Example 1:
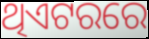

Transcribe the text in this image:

ଥିଏଟରରେ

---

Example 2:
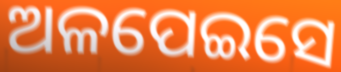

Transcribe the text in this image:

ଅଳପେଇସେ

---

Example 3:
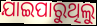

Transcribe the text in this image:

ଯାଇପାରୁଥିଲୁ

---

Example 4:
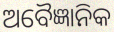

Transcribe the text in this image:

ଅବୈଜ୍ଞାନିକ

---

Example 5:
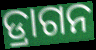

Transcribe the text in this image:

ଡ୍ରାଗନ